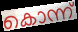
കൊന്ന്